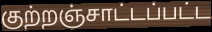
குற்றஞ்சாட்டப்பட்ட